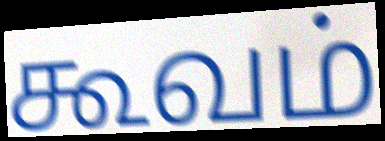
கூவம்